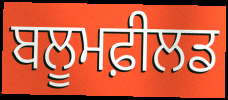
ਬਲੂਮਫ਼ੀਲਡ